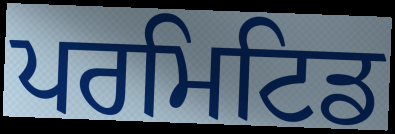
ਪਰਮਿਟਿਡ